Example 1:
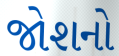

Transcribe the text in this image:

જોશનો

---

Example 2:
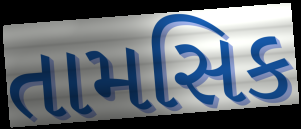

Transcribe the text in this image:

તામસિક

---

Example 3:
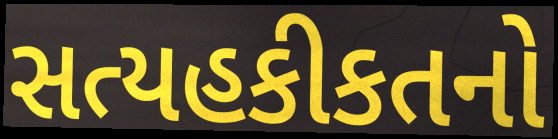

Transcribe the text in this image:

સત્યહકીકતનો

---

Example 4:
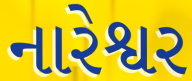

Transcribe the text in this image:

નારેશ્વર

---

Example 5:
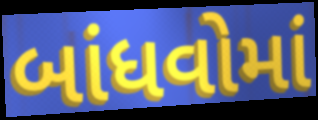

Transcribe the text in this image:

બાંધવોમાં